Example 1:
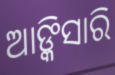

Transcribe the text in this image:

ଆଙ୍କିସାରି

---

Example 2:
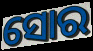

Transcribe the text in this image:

ସୋର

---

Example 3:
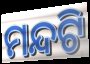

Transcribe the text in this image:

ମନ୍ଦଟି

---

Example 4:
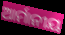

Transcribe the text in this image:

ଆର୍ମାନୀୟ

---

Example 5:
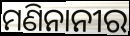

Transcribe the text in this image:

ମଣିନାନୀର